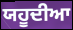
ਯਹੂਦੀਆ